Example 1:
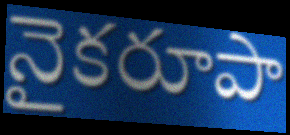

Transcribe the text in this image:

నైకరూపా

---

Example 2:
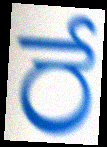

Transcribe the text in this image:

రే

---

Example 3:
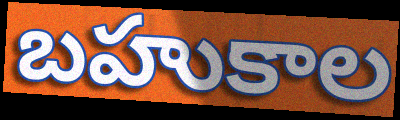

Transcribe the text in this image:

బహుకాల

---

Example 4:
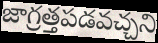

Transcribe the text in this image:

జాగ్రత్తపడవచ్చని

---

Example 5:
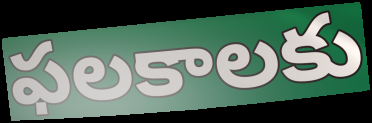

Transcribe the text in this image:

ఫలకాలకు